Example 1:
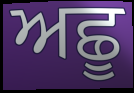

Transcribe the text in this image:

ਅਛੂ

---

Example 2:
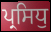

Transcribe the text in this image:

ਪ੍ਰਸਿਧੁ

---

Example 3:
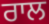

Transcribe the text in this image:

ਰਾਲ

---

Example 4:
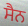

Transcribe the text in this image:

ਸੈਨ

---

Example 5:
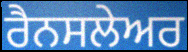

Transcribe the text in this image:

ਰੈਨਸਲੇਅਰ